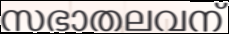
സഭാതലവന്